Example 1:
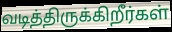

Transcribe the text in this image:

வடித்திருக்கிறீர்கள்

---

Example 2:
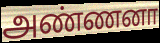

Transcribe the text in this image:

அண்ணனா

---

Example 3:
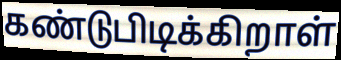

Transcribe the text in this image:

கண்டுபிடிக்கிறாள்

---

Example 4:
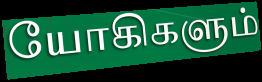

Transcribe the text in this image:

யோகிகளும்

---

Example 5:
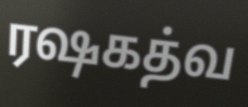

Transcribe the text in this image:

ரஷகத்வ